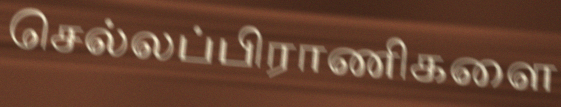
செல்லப்பிராணிகளை